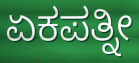
ಏಕಪತ್ನೀ